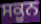
ਸਕੂਨ